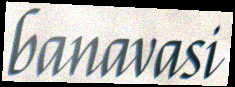
banavasi